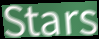
Stars